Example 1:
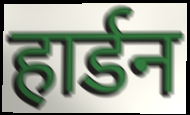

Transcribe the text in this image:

हार्डन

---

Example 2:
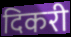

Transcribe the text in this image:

दिकरी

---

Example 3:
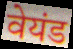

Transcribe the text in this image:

वेयंड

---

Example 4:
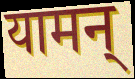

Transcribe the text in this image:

यामन्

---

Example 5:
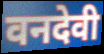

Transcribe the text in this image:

वनदेवी